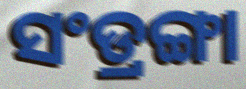
ସଂଡ୍ରଙ୍ଗା